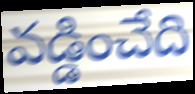
వడ్డించేది